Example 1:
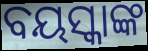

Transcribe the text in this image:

ବୟସ୍କାଙ୍କ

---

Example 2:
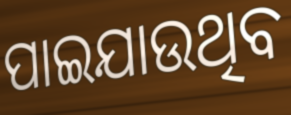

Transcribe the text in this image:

ପାଇଯାଉଥିବ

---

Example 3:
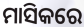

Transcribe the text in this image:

ମାସିକରେ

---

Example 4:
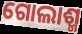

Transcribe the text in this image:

ଗୋଲାଶ୍ମ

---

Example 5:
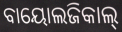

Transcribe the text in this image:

ବାୟୋଲଜିକାଲ୍